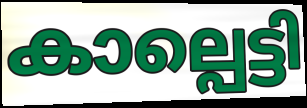
കാല്പെട്ടി